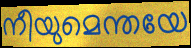
നീയുമെന്തയേ